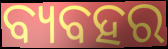
ବ୍ୟବହର